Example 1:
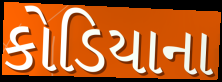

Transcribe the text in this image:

કોડિયાના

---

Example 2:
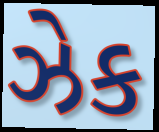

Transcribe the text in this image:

ઝેક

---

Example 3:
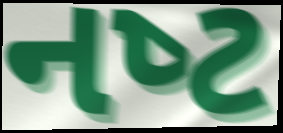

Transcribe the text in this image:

નષ્‍ટ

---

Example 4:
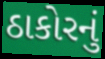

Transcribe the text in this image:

ઠાકોરનું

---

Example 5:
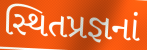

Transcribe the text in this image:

સ્થિતપ્રજ્ઞનાં